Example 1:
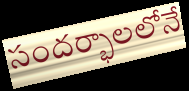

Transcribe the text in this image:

సందర్భాలలోనే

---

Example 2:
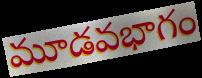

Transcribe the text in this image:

మూడవభాగం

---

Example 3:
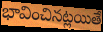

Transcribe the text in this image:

భావించినట్లయితే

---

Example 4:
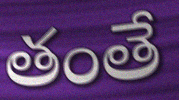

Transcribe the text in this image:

తంతే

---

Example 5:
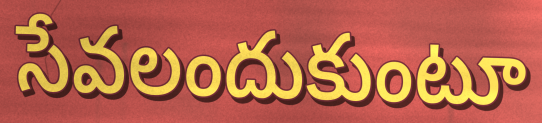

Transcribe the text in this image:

సేవలందుకుంటూ